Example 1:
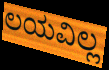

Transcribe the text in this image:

ಲಯವಿಲ್ಲ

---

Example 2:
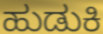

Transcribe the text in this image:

ಹುಡುಕಿ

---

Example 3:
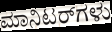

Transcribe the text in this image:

ಮಾನಿಟರ್‌ಗಳು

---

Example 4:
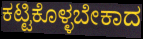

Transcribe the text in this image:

ಕಟ್ಟಿಕೊಳ್ಳಬೇಕಾದ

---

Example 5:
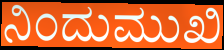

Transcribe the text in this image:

ನಿಂದುಮುಖಿ